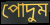
পোদুম